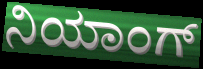
ನಿಯಾಂಗ್